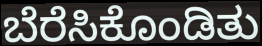
ಬೆರೆಸಿಕೊಂಡಿತು